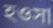
হওসা